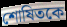
শোষিতকে